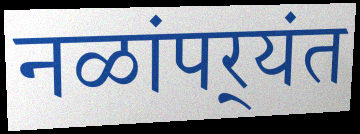
नळांपर्यंत